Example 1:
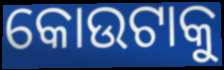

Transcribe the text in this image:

କୋଉଟାକୁ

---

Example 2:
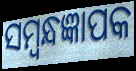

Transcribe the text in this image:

ସମ୍ବନ୍ଧଜ୍ଞାପକ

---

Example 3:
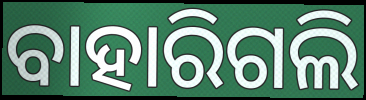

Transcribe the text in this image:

ବାହାରିଗଲି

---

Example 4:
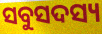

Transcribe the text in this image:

ସବୁସଦସ୍ୟ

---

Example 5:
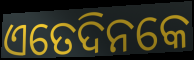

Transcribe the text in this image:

ଏତେଦିନକେ